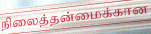
நிலைத்தன்மைக்கான